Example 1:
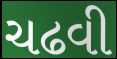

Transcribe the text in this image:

ચઢવી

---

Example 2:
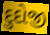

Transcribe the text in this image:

દુદોજી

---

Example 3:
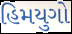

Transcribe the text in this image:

હિમયુગો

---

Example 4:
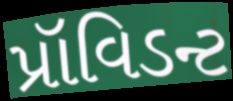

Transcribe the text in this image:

પ્રૉવિડન્ટ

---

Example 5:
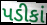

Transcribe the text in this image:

પડીકાં